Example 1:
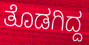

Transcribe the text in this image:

ತೊಡಗಿದ್ದ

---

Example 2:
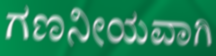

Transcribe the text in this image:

ಗಣನೀಯವಾಗಿ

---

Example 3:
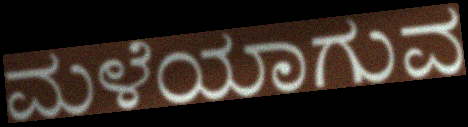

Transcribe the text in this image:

ಮಳೆಯಾಗುವ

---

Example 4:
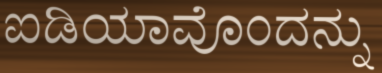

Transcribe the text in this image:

ಐಡಿಯಾವೊಂದನ್ನು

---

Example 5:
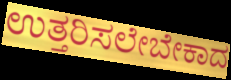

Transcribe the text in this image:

ಉತ್ತರಿಸಲೇಬೇಕಾದ